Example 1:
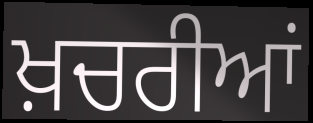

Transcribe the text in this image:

ਖ਼ਚਰੀਆਂ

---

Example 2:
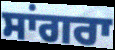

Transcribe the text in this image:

ਸਾਂਗਰਾ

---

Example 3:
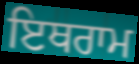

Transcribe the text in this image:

ਇਥਰਾਮ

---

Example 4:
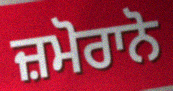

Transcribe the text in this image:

ਜ਼ਮੋਰਾਨੋ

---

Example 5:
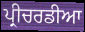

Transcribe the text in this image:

ਪ੍ਰੀਚਰਡੀਆ